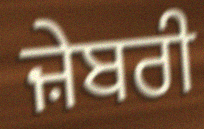
ਜ਼ੇਬਰੀ